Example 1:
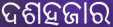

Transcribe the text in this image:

ଦଶହଜାର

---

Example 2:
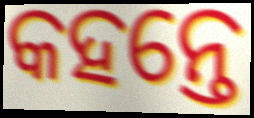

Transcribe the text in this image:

କହନ୍ତେ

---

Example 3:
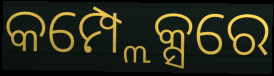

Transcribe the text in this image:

କମ୍ପ୍ଲେକ୍ସରେ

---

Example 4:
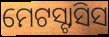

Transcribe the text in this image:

ମେଟସ୍ଟାସିସ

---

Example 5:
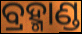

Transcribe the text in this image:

ବ୍ରହ୍ମାଣ୍ଡ